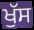
ਖੁੱਸ